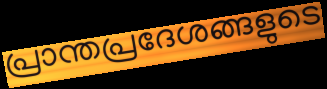
പ്രാന്തപ്രദേശങ്ങളുടെ